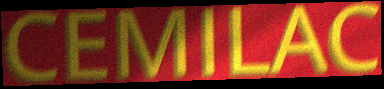
CEMILAC